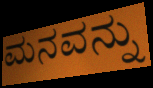
ಮನವನ್ನು